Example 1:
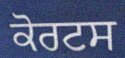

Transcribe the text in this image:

ਕੋਰਟਸ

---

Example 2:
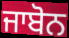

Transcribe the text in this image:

ਜਾਬੋਨ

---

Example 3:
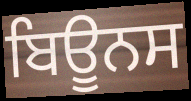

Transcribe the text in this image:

ਬਿਊਨਸ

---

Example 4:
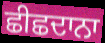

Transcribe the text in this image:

ਛੀਛਦਾਨਾ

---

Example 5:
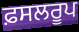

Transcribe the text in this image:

ਫ਼ਸਲਰੂਪ